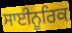
ਸਾਈਨੂਰਿਕ